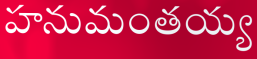
హనుమంతయ్య